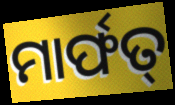
ମାର୍ଫତ୍